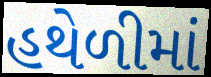
હથેળીમાં